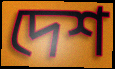
দেশ